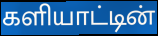
களியாட்டின்